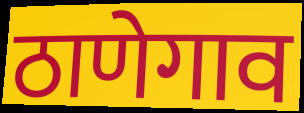
ठाणेगाव